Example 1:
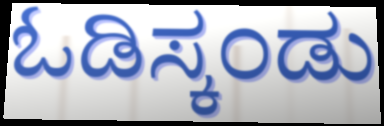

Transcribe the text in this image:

ಓಡಿಸ್ಕಂಡು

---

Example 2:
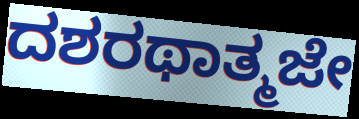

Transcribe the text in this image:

ದಶರಥಾತ್ಮಜೇ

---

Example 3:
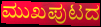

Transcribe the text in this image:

ಮುಖಪುಟದ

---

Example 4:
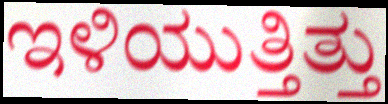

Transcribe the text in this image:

ಇಳಿಯುತ್ತಿತ್ತು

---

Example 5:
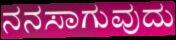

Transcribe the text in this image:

ನನಸಾಗುವುದು